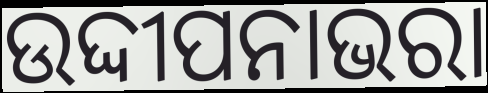
ଉଦ୍ଦୀପନାଭରା